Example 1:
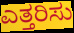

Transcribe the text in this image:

ಎತ್ತರಿಸು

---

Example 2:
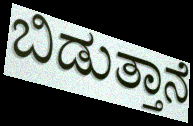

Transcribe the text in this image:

ಬಿಡುತ್ತಾನೆ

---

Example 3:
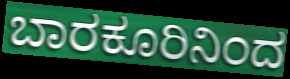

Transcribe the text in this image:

ಬಾರಕೂರಿನಿಂದ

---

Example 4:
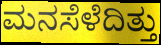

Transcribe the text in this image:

ಮನಸೆಳೆದಿತ್ತು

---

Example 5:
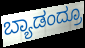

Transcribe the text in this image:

ಬ್ಯಾಡಂದ್ರೂ